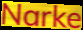
Narke